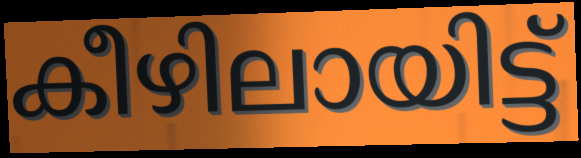
കീഴിലായിട്ട്